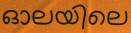
ഓലയിലെ